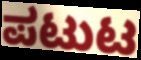
ಪಟುಟ